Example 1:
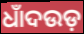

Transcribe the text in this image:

ଧାଁଦଉଡ଼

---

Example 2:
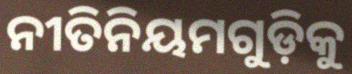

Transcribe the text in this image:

ନୀତିନିୟମଗୁଡ଼ିକୁ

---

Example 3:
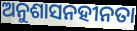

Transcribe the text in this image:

ଅନୁଶାସନହୀନତା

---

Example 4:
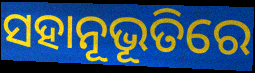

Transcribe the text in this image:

ସହାନୂଭୂତିରେ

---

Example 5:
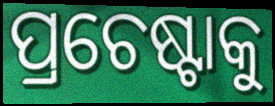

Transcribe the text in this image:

ପ୍ରଚେଷ୍ଟାକୁ